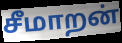
சீமாறன்